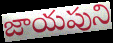
జాయపుని